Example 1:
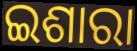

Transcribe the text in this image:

ଇଶାରା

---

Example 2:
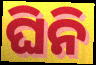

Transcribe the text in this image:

ଘିନି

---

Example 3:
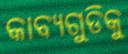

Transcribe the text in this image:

କାବ୍ୟଗୁଡିକୁ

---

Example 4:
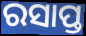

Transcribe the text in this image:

ରସାପ୍ତ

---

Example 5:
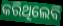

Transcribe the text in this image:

କରିଥିଲେବି